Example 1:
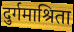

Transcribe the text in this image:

दुर्गमाश्रिता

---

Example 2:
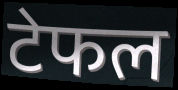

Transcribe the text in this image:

टेफल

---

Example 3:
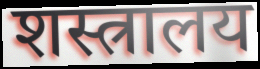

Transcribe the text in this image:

शस्त्रालय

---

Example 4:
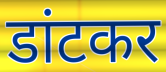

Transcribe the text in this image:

डांटकर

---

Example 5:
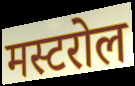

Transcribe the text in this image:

मस्टरोल